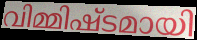
വിമ്മിഷ്ടമായി